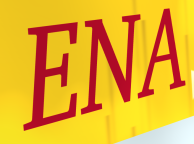
ENA